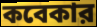
কবেকার